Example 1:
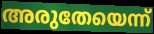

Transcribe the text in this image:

അരുതേയെന്ന്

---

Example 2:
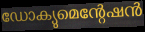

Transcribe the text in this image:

ഡോക്യുമെന്റേഷൻ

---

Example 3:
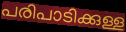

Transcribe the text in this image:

പരിപാടിക്കുള്ള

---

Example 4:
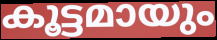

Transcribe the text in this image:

കൂട്ടമായും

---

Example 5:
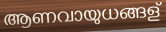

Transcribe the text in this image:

ആണവായുധങ്ങള്